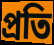
প্ৰতি